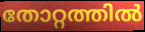
തോറ്റത്തിൽ